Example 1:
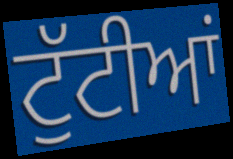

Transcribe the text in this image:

ਟੁੱਟੀਆਂ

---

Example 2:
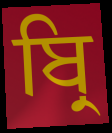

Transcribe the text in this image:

ਬ੍ਰਿ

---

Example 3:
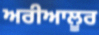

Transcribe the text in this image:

ਅਰੀਆਲੂਰ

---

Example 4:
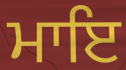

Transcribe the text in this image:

ਮਾਇ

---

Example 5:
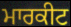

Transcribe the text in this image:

ਮਾਰਕੀਟ